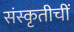
संस्कृतीचीं